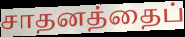
சாதனத்தைப்